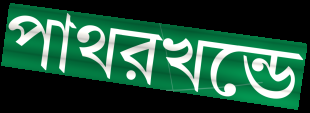
পাথরখন্ডে